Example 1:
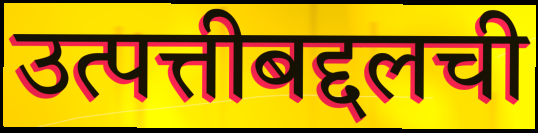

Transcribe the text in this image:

उत्पत्तीबद्दलची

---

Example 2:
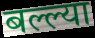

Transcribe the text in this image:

बल्ल्या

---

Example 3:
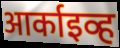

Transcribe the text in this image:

आर्काइव्ह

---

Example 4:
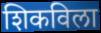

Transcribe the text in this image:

शिकविला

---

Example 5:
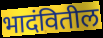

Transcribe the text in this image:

भादंवितील